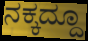
ನಕ್ಕದ್ದೂ